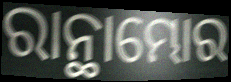
ରାନ୍ଥାମ୍ଭୋର